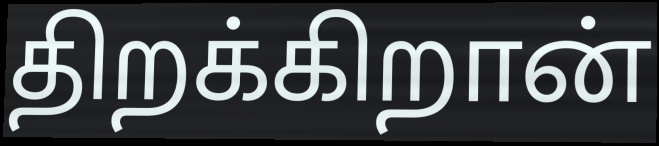
திறக்கிறான்